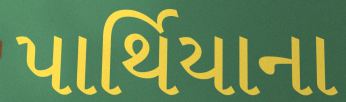
પાર્થિયાના